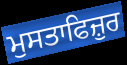
ਮੁਸਤਾਫਿਜ਼ੁਰ